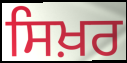
ਸਿਖ਼ਰ